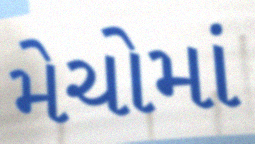
મેચોમાં